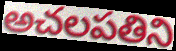
అచలపతిని